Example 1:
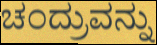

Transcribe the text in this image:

ಚಂದ್ರುವನ್ನು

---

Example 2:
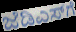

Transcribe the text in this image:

ಜೆಡಿಎಸ್‌ಗೆ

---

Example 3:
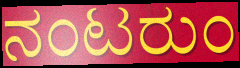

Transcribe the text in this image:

ನಂಟರುಂ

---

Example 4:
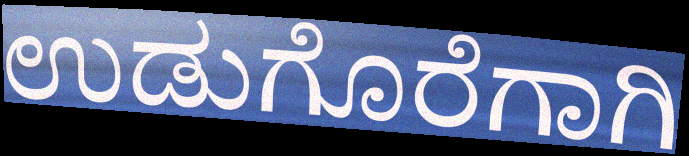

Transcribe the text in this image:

ಉಡುಗೊರೆಗಾಗಿ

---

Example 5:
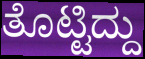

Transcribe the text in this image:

ತೊಟ್ಟಿದ್ದು